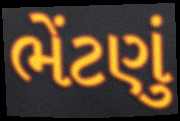
ભેંટણું